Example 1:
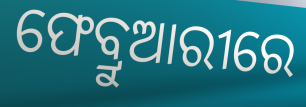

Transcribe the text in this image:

ଫେବ୍ରୁଆରୀରେ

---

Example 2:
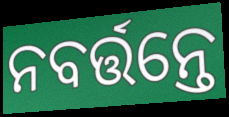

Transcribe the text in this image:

ନବର୍ତ୍ତନ୍ତେ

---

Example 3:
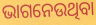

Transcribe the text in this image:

ଭାଗନେଉଥିବା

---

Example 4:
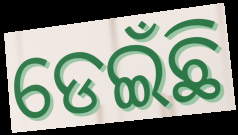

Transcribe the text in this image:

ଡେଇଁଛି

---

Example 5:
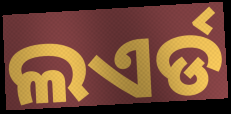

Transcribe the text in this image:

ଲଏର୍ଡ